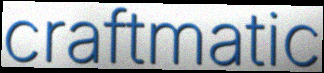
craftmatic